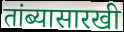
तांब्यासारखी